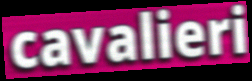
cavalieri